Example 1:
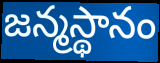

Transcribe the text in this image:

జన్మస్థానం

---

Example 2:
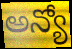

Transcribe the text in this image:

అన్యో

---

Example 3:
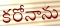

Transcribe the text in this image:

కరోనాను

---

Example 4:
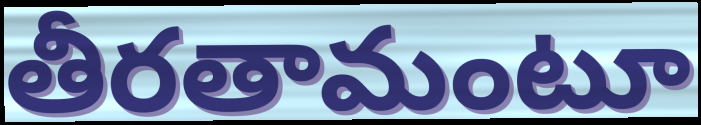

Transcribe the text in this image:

తీరతామంటూ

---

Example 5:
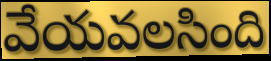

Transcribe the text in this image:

వేయవలసింది